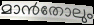
മാൻതോലും